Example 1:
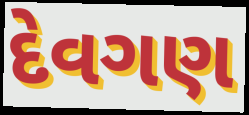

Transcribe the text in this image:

દેવગણ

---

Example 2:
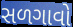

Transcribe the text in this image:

સળગાવો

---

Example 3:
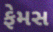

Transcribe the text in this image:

ફેમસ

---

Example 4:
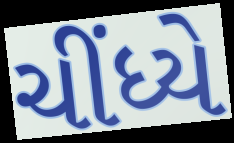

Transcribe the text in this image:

ચીંધ્યે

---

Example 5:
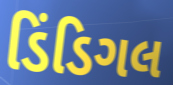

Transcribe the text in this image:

ડિંડિગલ